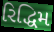
રિદ્ધિમ